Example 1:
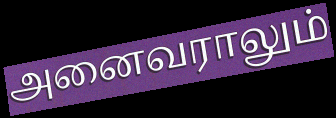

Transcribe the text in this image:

அனைவராலும்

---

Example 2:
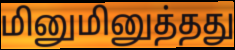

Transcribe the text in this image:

மினுமினுத்தது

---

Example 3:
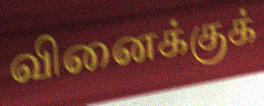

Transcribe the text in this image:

வினைக்குக்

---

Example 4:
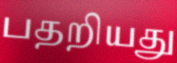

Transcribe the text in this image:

பதறியது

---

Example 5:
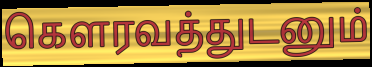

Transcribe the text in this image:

கௌரவத்துடனும்